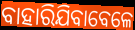
ବାହାରିଯିବାବେଳେ